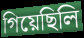
গিয়েছিলি